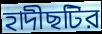
হাদীছটির